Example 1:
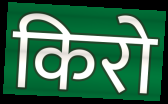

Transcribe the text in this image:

किरो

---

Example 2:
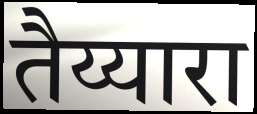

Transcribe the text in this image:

तैय्यारा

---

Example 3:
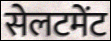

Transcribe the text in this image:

सेलटमेंट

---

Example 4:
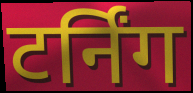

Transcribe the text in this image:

टर्निंग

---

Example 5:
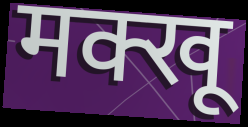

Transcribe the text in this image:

मक्खू